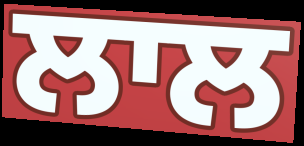
ਲਾਲ